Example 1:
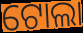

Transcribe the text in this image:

ଟୋଲା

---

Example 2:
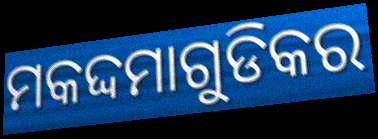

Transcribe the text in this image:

ମକଦ୍ଦମାଗୁଡିକର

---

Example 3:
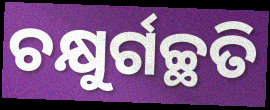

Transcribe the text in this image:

ଚକ୍ଷୁର୍ଗଚ୍ଛତି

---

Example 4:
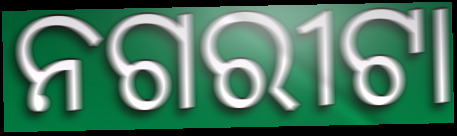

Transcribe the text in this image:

ନଗରୀଟା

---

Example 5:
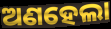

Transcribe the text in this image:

ଅଣହେଲା